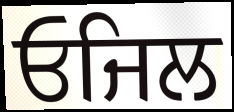
ਓਜਿਲ